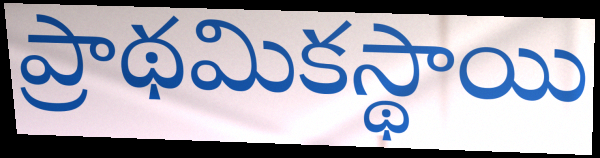
ప్రాథమికస్థాయి